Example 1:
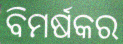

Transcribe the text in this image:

ବିମର୍ଷକର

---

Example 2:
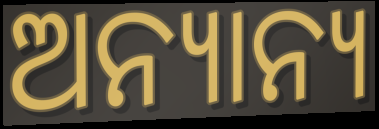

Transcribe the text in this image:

ଅନ୍ୟାନ୍ୟ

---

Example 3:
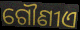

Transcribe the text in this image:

ଗୌଣୀଏ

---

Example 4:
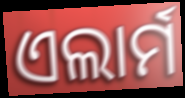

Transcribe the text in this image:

ଏଲାର୍ମ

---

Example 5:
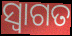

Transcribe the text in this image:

ସ୍ୱାଗତ